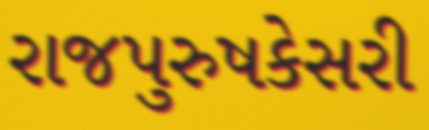
રાજપુરુષકેસરી